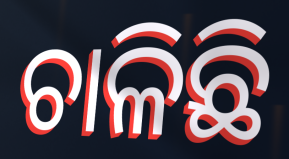
ଚାଳିଛି